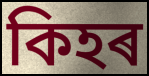
কিহৰ